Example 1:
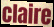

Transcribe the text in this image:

claire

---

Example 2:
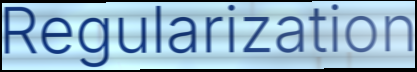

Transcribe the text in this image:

Regularization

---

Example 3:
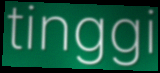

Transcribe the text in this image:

tinggi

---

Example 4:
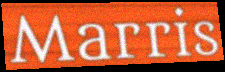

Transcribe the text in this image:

Marris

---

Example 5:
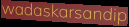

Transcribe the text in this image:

wadaskarsandip